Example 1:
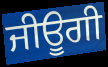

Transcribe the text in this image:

ਜੀਊਗੀ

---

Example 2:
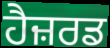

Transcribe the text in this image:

ਹੈਜ਼ਰਡ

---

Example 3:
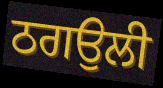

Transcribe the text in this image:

ਠਗਉਲੀ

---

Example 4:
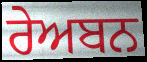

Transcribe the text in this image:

ਰੇਅਬਨ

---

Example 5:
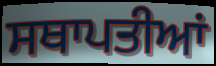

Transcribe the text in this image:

ਸਥਾਪਤੀਆਂ